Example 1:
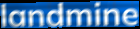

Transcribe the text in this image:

landmine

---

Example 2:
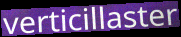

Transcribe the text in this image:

verticillaster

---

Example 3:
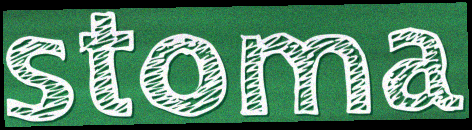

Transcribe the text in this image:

stoma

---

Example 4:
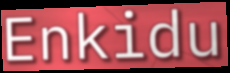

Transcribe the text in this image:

Enkidu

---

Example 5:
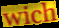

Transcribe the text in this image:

wich